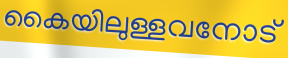
കൈയിലുള്ളവനോട്